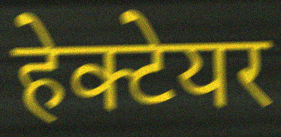
हेक्टेयर